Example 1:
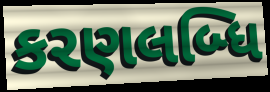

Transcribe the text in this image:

કરણલબ્ધિ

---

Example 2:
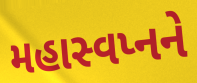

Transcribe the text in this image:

મહાસ્વપ્નને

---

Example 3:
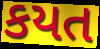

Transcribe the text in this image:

કયત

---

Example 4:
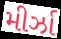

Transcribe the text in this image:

મીર્ઝા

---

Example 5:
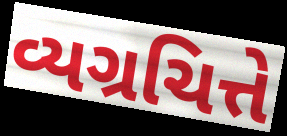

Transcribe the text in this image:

વ્યગ્રચિત્તે